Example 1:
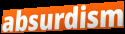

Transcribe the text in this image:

absurdism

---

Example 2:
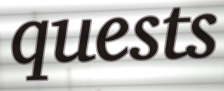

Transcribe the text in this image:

quests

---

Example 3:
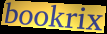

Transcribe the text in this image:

bookrix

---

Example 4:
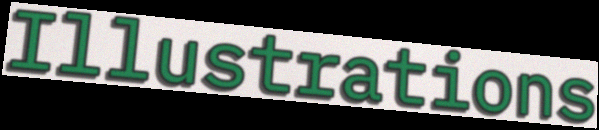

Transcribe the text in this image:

Illustrations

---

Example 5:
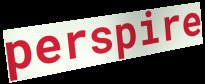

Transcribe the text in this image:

perspire